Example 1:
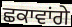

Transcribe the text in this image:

ਛਕਾਵਾਂਗੇ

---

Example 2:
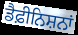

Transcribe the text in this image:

ਡੈਫ਼ੀਨਿਸ਼ਨਾਂ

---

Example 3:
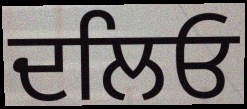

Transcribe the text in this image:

ਦਲਿਓ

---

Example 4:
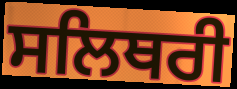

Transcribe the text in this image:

ਸਲਿਥਰੀ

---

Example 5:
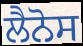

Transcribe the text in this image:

ਲੈਨੋਸ